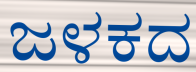
ಜಳಕದ